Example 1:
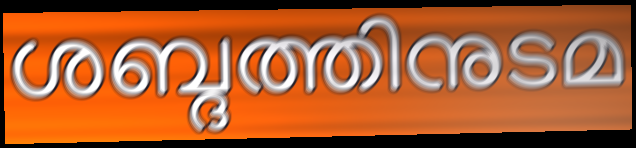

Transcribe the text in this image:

ശബ്ദത്തിനുടമ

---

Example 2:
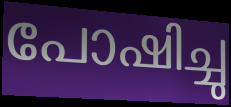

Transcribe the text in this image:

പോഷിച്ചു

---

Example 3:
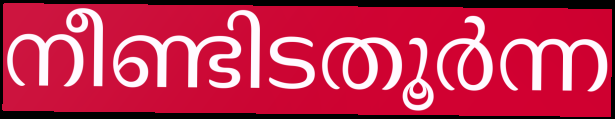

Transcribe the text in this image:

നീണ്ടിടതൂർന്ന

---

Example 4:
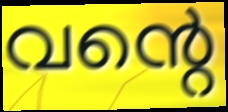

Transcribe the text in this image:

വന്റെ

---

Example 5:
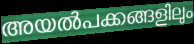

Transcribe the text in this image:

അയൽപക്കങ്ങളിലും